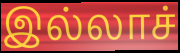
இல்லாச்